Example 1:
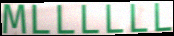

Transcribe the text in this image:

MLLLLLL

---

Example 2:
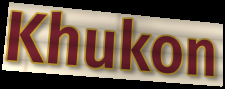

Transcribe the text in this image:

Khukon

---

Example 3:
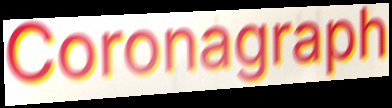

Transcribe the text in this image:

Coronagraph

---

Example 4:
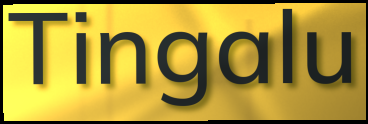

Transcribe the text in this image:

Tingalu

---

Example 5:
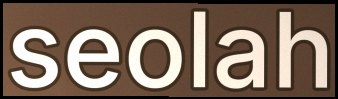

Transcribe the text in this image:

seolah